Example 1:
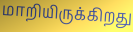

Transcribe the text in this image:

மாறியிருக்கிறது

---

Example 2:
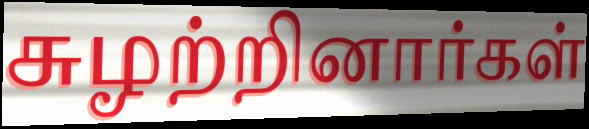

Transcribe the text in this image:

சுழற்றினார்கள்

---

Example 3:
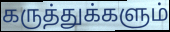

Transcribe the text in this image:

கருத்துக்களும்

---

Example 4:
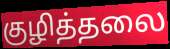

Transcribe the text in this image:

குழித்தலை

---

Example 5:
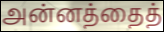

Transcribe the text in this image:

அன்னத்தைத்